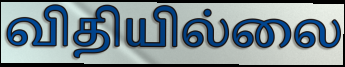
விதியில்லை